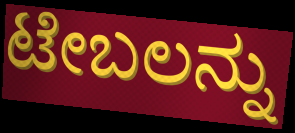
ಟೇಬಲನ್ನು